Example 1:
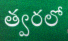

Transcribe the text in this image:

త్వరలో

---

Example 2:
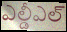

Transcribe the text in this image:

ఎల్డీఎల్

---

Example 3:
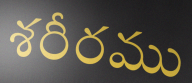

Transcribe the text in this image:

శరీరము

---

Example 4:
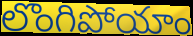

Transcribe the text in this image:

లొంగిపోయాం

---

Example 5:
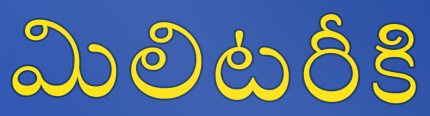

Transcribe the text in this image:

మిలిటరీకి